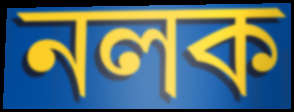
নলক